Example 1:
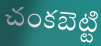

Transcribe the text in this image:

చంకబెట్టి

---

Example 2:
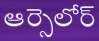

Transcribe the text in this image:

ఆర్సెలోర్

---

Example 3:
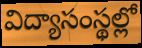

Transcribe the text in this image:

విద్యాసంస్థల్లో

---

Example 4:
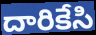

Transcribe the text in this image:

దారికేసి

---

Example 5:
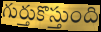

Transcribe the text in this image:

గుర్తుకొస్తుంది